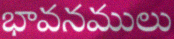
భావనములు